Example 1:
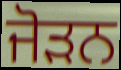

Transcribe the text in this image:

ਜੋੜਨ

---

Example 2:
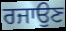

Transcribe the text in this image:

ਰਜਾਉਣ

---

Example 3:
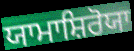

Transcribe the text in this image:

ਯਾਮਾਸ਼ਿਰੋਯਾ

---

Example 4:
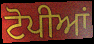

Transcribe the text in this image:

ਟੋਪੀਆਂ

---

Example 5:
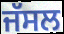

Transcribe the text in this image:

ਜੱਸਲ